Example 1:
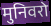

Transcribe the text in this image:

मुनिवरो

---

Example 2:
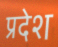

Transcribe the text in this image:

प्रदेश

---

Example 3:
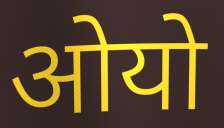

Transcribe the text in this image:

ओयो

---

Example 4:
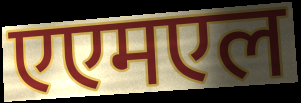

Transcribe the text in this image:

एएमएल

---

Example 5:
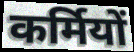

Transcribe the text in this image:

कर्मियों